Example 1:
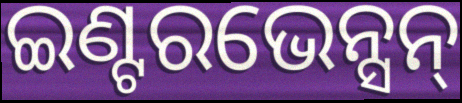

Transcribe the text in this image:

ଇଣ୍ଟରଭେନ୍ସନ୍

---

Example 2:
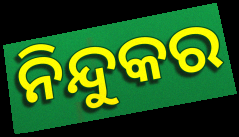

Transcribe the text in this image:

ନିନ୍ଦୁକର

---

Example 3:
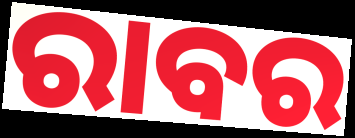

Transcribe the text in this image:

ରାବର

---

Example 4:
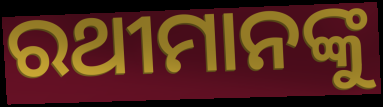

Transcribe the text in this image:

ରଥୀମାନଙ୍କୁ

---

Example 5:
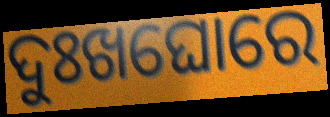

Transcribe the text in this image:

ଦୁଃଖଘୋରେ